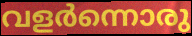
വളർന്നൊരു